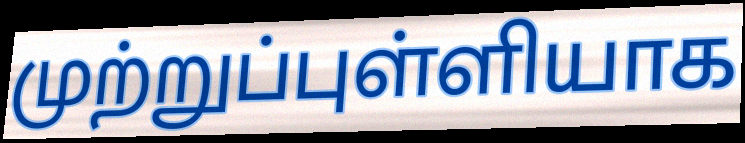
முற்றுப்புள்ளியாக